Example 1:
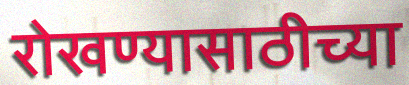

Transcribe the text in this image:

रोखण्यासाठीच्या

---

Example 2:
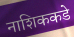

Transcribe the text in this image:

नाशिककडे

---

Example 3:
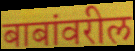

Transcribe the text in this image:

बाबांवरील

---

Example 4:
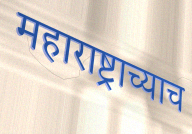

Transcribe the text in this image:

महाराष्ट्राच्याच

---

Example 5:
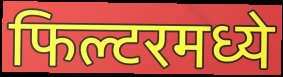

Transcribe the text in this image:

फिल्टरमध्ये